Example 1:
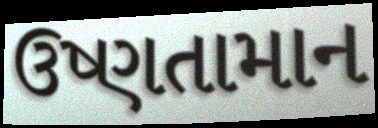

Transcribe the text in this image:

ઉષ્ણતામાન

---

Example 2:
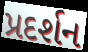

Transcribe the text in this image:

પ્રદર્શન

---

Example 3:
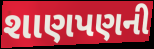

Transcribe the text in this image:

શાણપણની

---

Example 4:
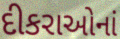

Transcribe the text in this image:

દીકરાઓનાં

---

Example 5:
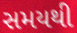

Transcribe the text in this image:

સમયથી